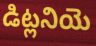
డిట్లనియె